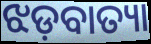
ଝଡ଼ବାତ୍ୟା